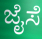
ಜೈಸೆ